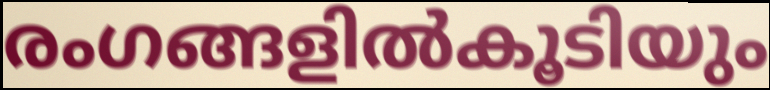
രംഗങ്ങളിൽകൂടിയും